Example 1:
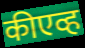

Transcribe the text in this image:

कीएव्ह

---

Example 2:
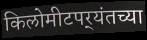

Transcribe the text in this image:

किलोमीटपर्यंतच्या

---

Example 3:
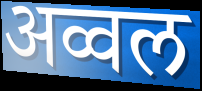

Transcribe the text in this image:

अव्वल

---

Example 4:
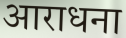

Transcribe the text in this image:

आराधना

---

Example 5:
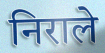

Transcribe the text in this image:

निराले